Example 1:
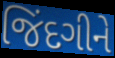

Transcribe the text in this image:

જિંદગીને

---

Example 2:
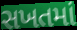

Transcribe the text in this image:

સખતમાં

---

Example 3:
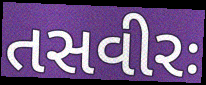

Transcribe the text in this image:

તસવીરઃ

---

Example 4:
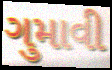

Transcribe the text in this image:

ગુમાવી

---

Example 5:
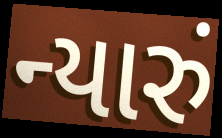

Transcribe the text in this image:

ન્યારું